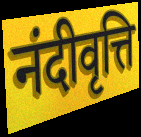
नंदीवृत्ति